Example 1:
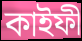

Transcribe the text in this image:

কাইফী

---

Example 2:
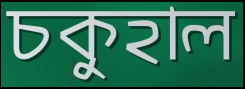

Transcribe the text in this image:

চকুহাল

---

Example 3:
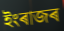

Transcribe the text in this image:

ইংৰাজৰ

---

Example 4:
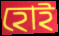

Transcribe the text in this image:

হোই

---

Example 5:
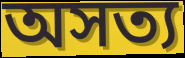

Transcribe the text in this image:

অসত্য